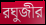
রঘুজীর